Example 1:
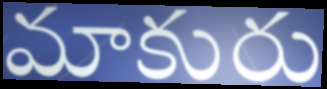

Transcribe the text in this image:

మాకురు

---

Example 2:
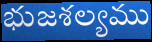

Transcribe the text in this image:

భుజశల్యము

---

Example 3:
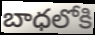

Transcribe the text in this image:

బాధలోకి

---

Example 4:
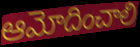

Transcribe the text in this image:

ఆమోదించాలి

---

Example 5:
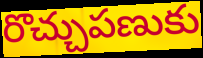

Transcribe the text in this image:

రొచ్చుపణుకు